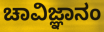
ಚಾವಿಜ್ಞಾನಂ